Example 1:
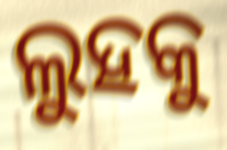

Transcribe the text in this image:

ଲୁହକୁ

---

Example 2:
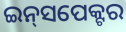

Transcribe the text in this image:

ଇନ୍‌ସପେକ୍ଟର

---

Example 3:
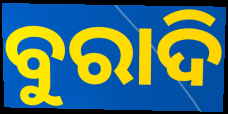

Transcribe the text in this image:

ବୁରାଦି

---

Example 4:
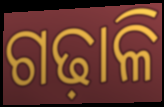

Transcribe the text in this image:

ଗଢ଼ାଳି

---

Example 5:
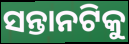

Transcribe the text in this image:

ସନ୍ତାନଟିକୁ